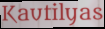
Kautilyas